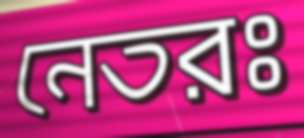
নেতরঃ